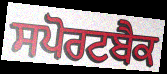
ਸਪੋਰਟਬੈਕ